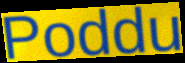
Poddu